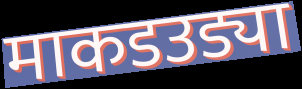
माकडउड्या